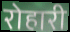
रोहारी